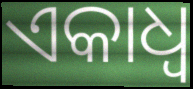
ଏକାଧ୍ଵ